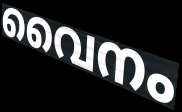
വൈനം